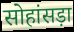
सोहांसड़ा